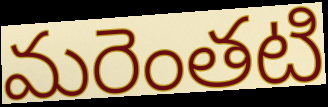
మరెంతటి